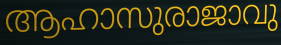
ആഹാസുരാജാവു